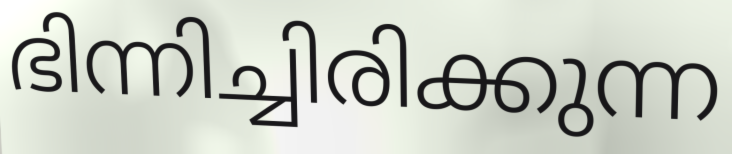
ഭിന്നിച്ചിരിക്കുന്ന